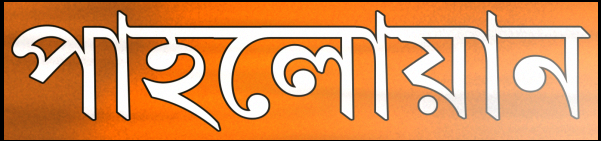
পাহলোয়ান